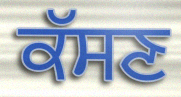
ਕੱਸਣ